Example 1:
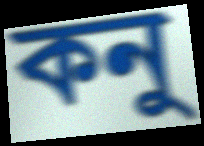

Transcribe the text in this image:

কনু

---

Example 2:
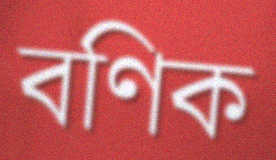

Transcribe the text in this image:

বণিক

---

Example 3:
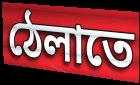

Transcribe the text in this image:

ঠেলাতে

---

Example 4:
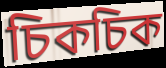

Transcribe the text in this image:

চিকচিক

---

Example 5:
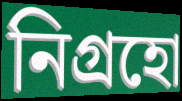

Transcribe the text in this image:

নিগ্রহো